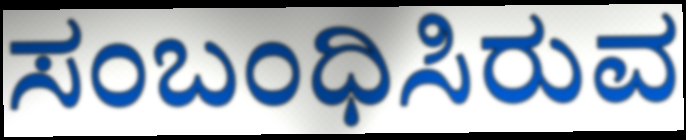
ಸಂಬಂಧಿಸಿರುವ